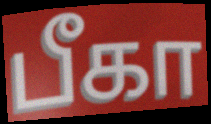
பீகா